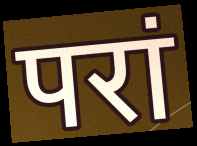
परां